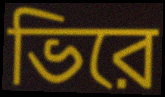
ভিরে